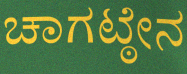
ಚಾಗಟ್ಠೇನ